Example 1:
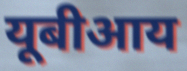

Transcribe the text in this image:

यूबीआय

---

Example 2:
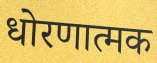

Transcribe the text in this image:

धोरणात्मक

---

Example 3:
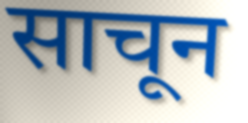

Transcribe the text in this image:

साचून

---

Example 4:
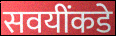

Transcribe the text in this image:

सवयींकडे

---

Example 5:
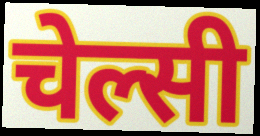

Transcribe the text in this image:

चेल्सी